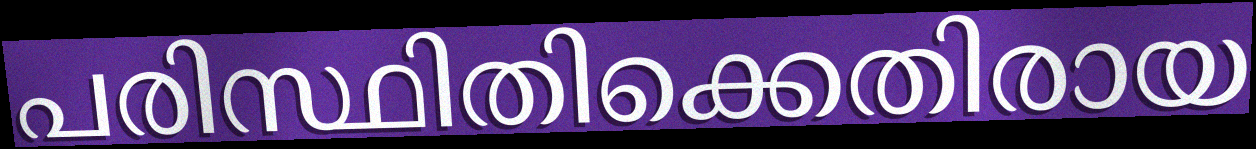
പരിസ്ഥിതിക്കെതിരായ